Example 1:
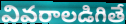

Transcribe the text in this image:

వివరాలడిగితే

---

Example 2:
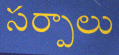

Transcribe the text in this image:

సర్పాలు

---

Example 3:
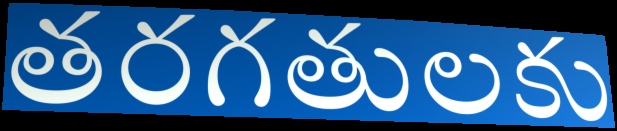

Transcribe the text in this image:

తరగతులకు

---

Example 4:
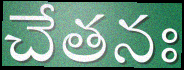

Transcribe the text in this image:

చేతనః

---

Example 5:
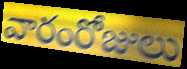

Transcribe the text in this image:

వారంరోజులు